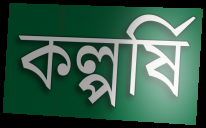
কল্পর্ষি